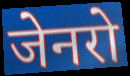
जेनरो